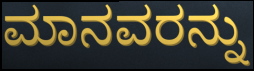
ಮಾನವರನ್ನು